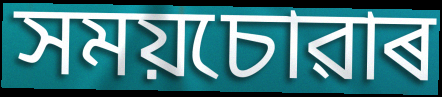
সময়চোৱাৰ